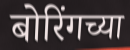
बोरिंगच्या